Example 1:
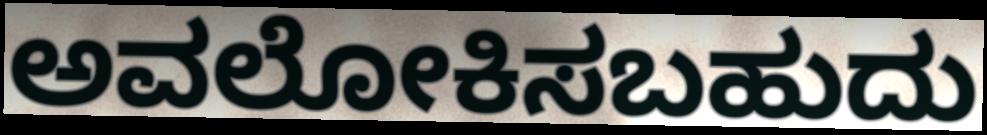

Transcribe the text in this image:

ಅವಲೋಕಿಸಬಹುದು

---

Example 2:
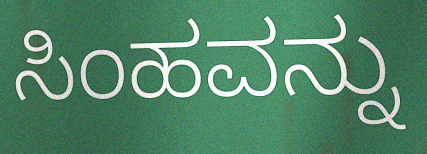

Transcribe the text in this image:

ಸಿಂಹವನ್ನು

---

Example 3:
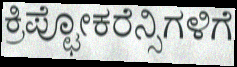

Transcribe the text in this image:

ಕ್ರಿಪ್ಟೋಕರೆನ್ಸಿಗಳಿಗೆ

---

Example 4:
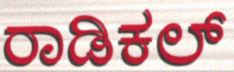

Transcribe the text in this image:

ರಾಡಿಕಲ್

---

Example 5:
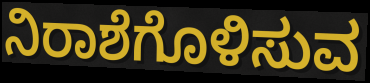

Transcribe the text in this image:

ನಿರಾಶೆಗೊಳಿಸುವ